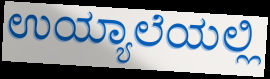
ಉಯ್ಯಾಲೆಯಲ್ಲಿ